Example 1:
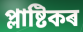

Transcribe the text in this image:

প্লাষ্টিকৰ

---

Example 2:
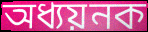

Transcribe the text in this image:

অধ্যয়নক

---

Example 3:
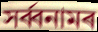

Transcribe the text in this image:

সৰ্ব্বনামৰ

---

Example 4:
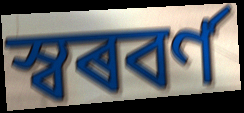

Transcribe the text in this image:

স্বৰবৰ্ণ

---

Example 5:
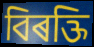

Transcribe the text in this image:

বিৰক্তি